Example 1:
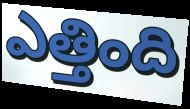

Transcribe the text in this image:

ఎత్తింది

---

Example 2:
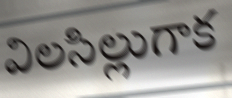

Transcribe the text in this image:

విలసిల్లుగాక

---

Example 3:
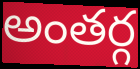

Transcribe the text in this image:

అంతర్గ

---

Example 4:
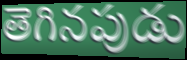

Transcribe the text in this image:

తెగినపుడు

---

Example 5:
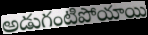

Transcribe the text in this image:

అడుగంటిపోయాయి